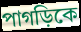
পাগড়িকে